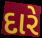
દારે